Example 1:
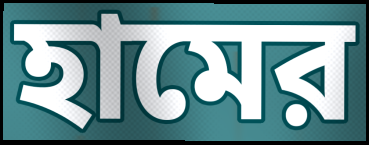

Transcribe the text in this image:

হামের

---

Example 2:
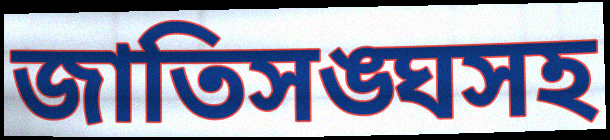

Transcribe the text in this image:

জাতিসঙ্ঘসহ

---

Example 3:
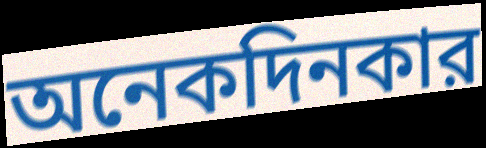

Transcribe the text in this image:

অনেকদিনকার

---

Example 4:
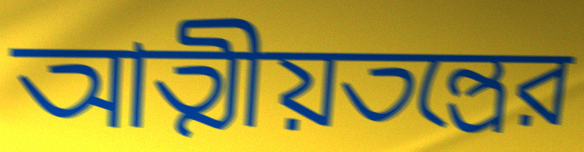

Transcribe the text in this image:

আত্মীয়তন্ত্রের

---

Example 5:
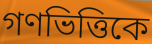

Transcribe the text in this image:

গণভিত্তিকে